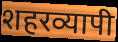
शहरव्यापी